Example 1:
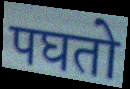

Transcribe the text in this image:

पघतो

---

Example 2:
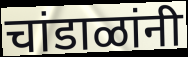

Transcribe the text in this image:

चांडाळांनी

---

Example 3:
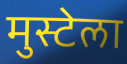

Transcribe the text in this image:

मुस्टेला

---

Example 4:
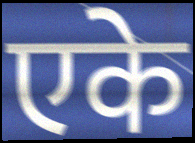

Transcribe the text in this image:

एके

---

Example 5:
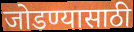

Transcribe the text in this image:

जोडण्यासाठी